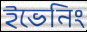
ইভেনিং